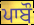
ਪਾਬੌ